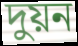
দুয়ন